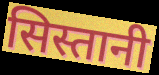
सिस्तानी